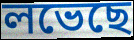
লভেছে